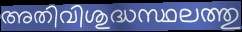
അതിവിശുദ്ധസ്ഥലത്തു